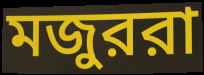
মজুররা